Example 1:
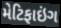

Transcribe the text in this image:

મેટિફાઇંગ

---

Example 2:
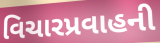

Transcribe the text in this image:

વિચારપ્રવાહની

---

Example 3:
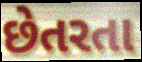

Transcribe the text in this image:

છેતરતા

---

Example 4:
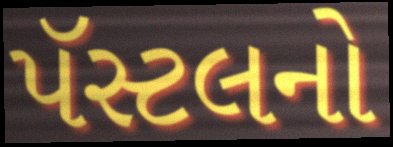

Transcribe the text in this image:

પૅસ્ટલનો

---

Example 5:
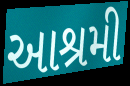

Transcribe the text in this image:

આશ્રમી